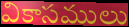
వికాసములు